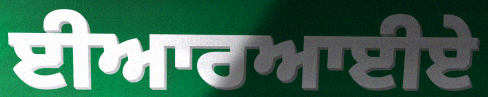
ਈਆਰਆਈਏ